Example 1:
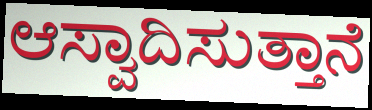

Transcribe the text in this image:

ಆಸ್ವಾದಿಸುತ್ತಾನೆ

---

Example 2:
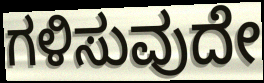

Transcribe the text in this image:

ಗಳಿಸುವುದೇ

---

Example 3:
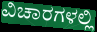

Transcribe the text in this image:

ವಿಚಾರಗಳಲ್ಲಿ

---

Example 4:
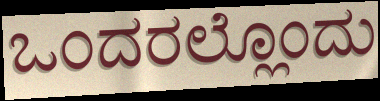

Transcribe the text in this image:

ಒಂದರಲ್ಲೊಂದು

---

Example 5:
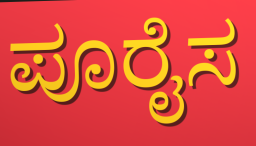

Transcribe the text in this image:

ಪೂರೈಸ